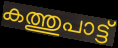
കത്തുപാട്ട്